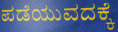
ಪಡೆಯುವದಕ್ಕೆ